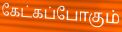
கேட்கப்போகும்